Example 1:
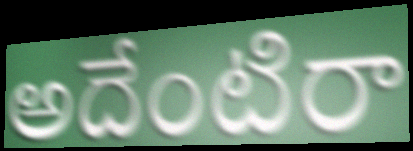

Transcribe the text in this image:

అదేంటిరా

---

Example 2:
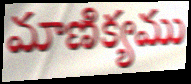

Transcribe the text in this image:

మాణిక్యము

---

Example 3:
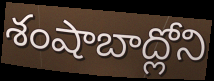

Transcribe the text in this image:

శంషాబాద్లోని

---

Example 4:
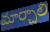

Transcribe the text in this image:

మార్చాలి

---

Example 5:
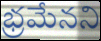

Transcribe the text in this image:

భ్రమేనని